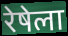
रेषेला